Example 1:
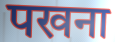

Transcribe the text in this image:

पखना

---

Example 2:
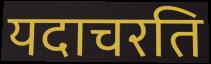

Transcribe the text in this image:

यदाचरति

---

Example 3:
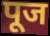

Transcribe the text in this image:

पूज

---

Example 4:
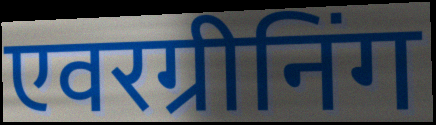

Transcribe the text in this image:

एवरग्रीनिंग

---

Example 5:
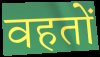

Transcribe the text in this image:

वहतों